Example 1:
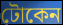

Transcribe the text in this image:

টোকেন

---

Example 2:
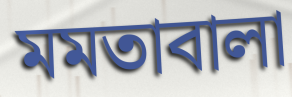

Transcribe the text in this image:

মমতাবালা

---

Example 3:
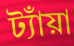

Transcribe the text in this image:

ট্যাঁয়া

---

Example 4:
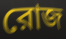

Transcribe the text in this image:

রোজ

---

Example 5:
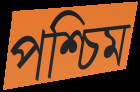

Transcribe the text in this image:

পশ্চিম